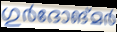
ഗുർദോങ്മർ